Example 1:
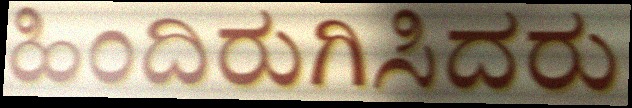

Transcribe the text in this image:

ಹಿಂದಿರುಗಿಸಿದರು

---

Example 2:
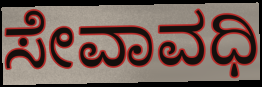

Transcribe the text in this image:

ಸೇವಾವಧಿ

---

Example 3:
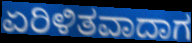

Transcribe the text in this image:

ಏರಿಳಿತವಾದಾಗ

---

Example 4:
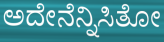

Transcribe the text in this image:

ಅದೇನೆನ್ನಿಸಿತೋ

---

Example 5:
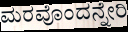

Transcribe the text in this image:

ಮರವೊಂದನ್ನೇರಿ